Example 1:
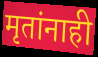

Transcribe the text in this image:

मृतांनाही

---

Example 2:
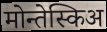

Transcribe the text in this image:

मोन्तेस्किअ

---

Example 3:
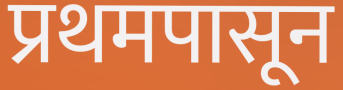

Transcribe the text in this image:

प्रथमपासून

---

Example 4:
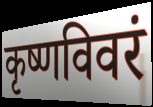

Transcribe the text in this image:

कृष्णविवरं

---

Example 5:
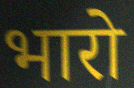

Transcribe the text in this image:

भारो